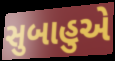
સુબાહુએ